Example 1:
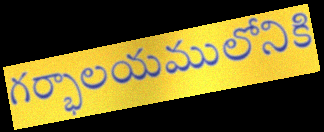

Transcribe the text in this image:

గర్భాలయములోనికి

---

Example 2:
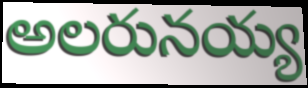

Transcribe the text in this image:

అలరునయ్య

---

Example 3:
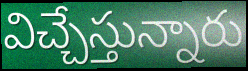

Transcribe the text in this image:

విచ్చేస్తున్నారు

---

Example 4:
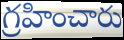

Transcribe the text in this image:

గ్రహించారు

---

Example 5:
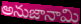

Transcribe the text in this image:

అనుజానామి